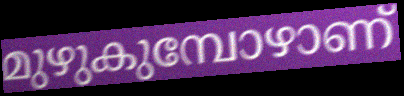
മുഴുകുമ്പോഴാണ്